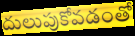
దులుపుకోవడంతో